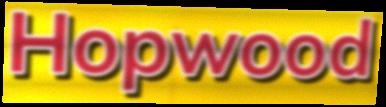
Hopwood